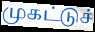
முகட்டுச்